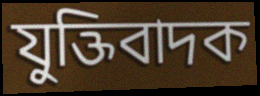
যুক্তিবাদক